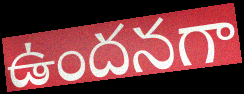
ఉందనగా